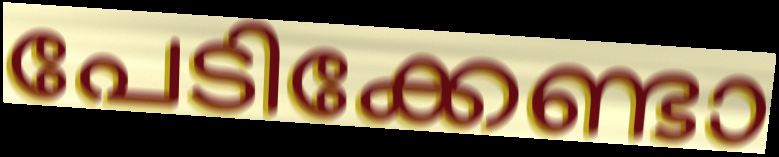
പേടിക്കേണ്ടാ